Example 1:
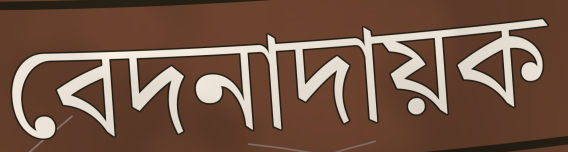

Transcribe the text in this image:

বেদনাদায়ক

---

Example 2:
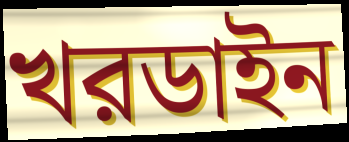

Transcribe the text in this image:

খরডাইন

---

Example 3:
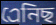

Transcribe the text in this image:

এেনিছ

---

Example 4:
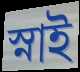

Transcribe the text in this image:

স্নাই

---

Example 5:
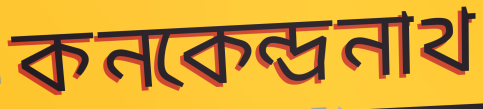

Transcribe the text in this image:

কনকেন্দ্রনাথ